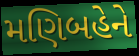
મણિબહેને